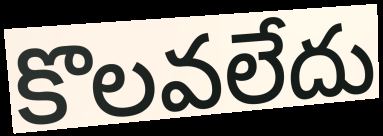
కొలవలేదు